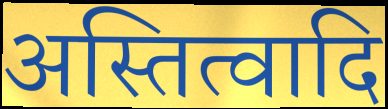
अस्तित्वादि